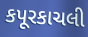
કપૂરકાચલી